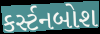
કર્સ્ટનબોશ